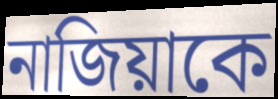
নাজিয়াকে